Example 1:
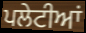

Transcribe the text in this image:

ਪਲੇਟੀਆਂ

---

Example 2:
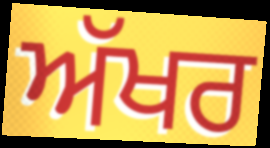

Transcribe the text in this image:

ਅੱਖਰ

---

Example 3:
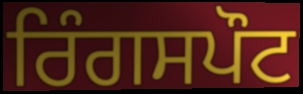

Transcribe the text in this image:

ਰਿੰਗਸਪੌਟ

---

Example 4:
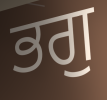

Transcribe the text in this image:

ਭਗੁ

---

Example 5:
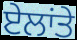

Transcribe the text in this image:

ਏਲਾਂਤੇ